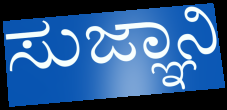
ಸುಜ್ಞಾನಿ